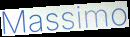
Massimo